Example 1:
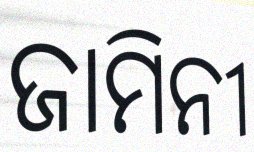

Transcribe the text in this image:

ଜାମିନୀ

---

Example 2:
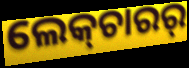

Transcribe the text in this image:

ଲେକ୍‍ଚାରର୍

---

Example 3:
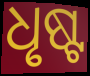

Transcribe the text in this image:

ଧୃଷ୍ଟ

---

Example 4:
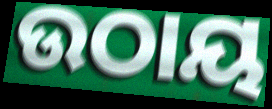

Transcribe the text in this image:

ଉଠାୟ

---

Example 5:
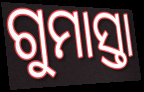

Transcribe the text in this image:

ଗୁମାସ୍ତା